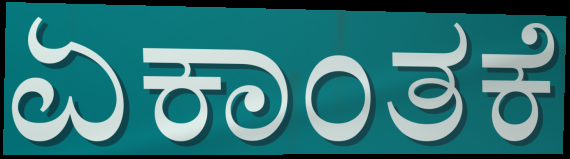
ಏಕಾಂತಕೆ